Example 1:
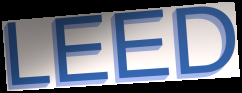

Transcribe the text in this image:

LEED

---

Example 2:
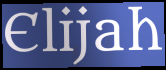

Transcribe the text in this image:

Elijah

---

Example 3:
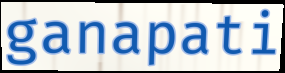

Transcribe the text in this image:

ganapati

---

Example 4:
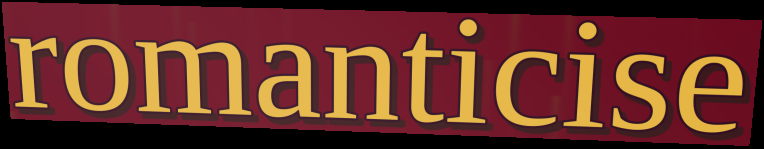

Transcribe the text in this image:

romanticise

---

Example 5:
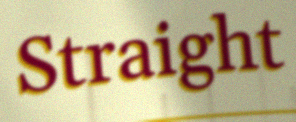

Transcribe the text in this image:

Straight